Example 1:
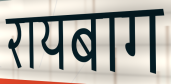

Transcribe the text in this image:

रायबाग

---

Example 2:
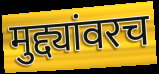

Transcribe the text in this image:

मुद्द्यांवरच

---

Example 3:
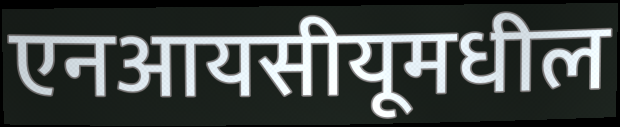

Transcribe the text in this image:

एनआयसीयूमधील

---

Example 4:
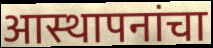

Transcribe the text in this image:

आस्थापनांचा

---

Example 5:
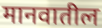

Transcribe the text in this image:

मानवातील